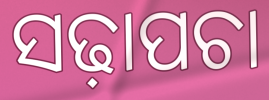
ସଢ଼ାପଚା